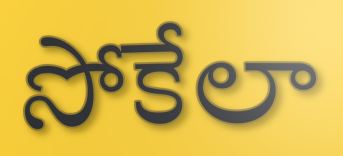
సోకేలా